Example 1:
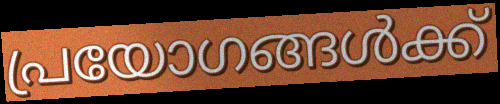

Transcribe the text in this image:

പ്രയോഗങ്ങൾക്ക്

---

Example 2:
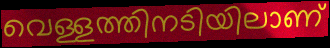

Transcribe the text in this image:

വെള്ളത്തിനടിയിലാണ്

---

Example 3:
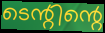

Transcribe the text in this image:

ടെന്റിന്റെ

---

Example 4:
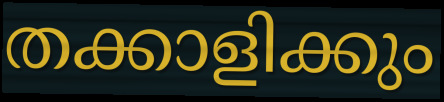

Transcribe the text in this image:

തക്കാളിക്കും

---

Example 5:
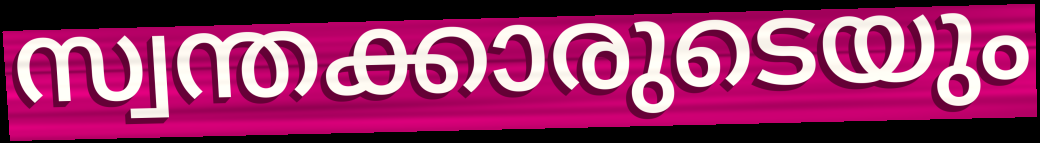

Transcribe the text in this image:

സ്വന്തക്കാരുടെയും